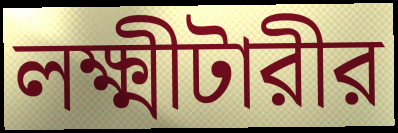
লক্ষ্মীটারীর